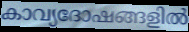
കാവ്യദോഷങ്ങളിൽ